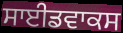
ਸਾਈਡਵਾਕਸ